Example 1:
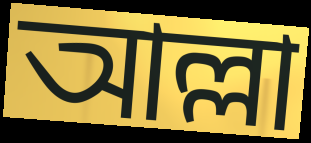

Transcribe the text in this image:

আল্লা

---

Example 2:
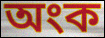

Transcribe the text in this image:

অংক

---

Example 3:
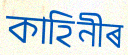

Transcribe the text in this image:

কাহিনীৰ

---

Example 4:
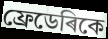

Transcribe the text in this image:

ফ্ৰেডেৰিকে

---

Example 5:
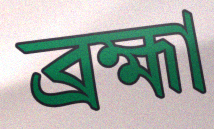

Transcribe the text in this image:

ব্ৰহ্মা